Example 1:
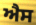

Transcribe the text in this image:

ਐੈਸ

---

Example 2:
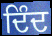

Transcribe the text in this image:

ਦਿੰਦ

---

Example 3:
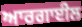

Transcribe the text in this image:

ਆਰਗਾਈਲ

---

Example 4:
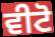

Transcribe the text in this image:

ਵੀਟੋ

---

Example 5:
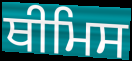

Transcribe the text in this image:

ਥੀਮਿਸ